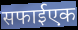
सफाईएक